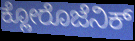
ಕ್ಲೋರೊಜೆನಿಕ್